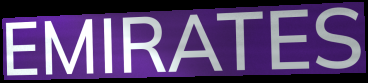
EMIRATES